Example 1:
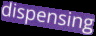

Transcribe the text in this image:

dispensing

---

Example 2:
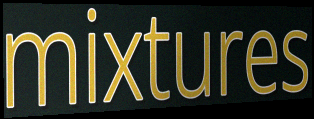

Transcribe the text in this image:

mixtures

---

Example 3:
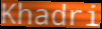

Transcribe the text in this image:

Khadri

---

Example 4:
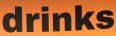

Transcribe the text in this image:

drinks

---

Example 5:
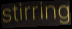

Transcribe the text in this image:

stirring